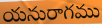
యనురాగము